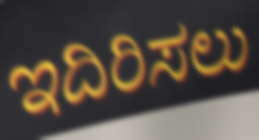
ಇದಿರಿಸಲು